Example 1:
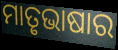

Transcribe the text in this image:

ମାତୃଭାଷାର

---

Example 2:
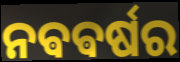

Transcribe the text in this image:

ନଵଵର୍ଷର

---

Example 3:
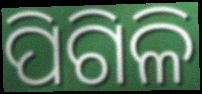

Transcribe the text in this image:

ପିଗିଳି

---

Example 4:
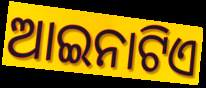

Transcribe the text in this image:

ଆଇନାଟିଏ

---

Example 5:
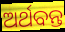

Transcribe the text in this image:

ଅର୍ଥବନ୍ତ